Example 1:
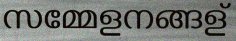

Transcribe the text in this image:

സമ്മേളനങ്ങള്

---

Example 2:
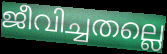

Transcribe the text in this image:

ജീവിച്ചതല്ലെ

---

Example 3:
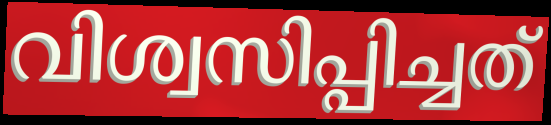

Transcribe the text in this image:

വിശ്വസിപ്പിച്ചത്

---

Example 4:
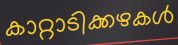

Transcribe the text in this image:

കാറ്റാടിക്കഴകൾ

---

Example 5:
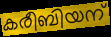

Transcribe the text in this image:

കരീബിയന്